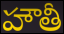
హౌతీ